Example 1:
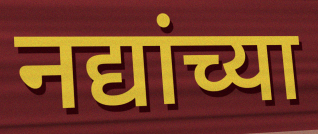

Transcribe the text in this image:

नद्यांच्या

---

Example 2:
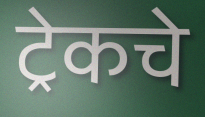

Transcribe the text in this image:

ट्रेकचे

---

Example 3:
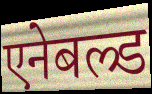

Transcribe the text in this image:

एनेबल्ड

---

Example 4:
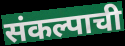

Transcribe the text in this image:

संकल्पाची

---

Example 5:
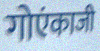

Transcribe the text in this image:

गोएंकाजी